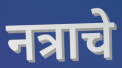
नत्राचे